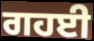
ਗਹਈ